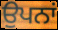
ਉਪਨਾਂ